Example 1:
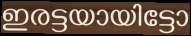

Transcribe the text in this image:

ഇരട്ടയായിട്ടോ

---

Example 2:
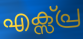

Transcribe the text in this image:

എക്സ്പ്ര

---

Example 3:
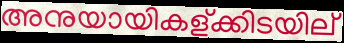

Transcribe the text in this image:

അനുയായികള്ക്കിടയില്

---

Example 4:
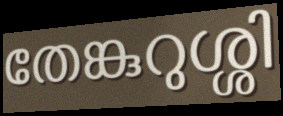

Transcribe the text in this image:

തേങ്കുറുശ്ശി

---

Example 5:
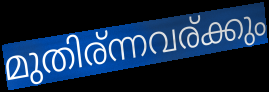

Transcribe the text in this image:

മുതിര്ന്നവര്ക്കും